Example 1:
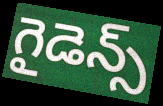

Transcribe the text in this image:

గైడెన్స్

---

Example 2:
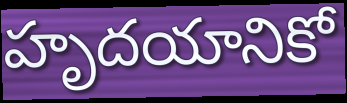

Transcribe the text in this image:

హృదయానికో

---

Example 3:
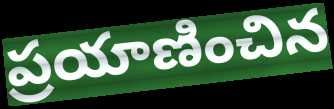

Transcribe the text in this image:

ప్రయాణించిన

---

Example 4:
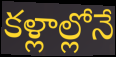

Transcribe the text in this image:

కళ్లాల్లోనే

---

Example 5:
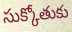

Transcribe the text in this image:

సుక్కోతుకు